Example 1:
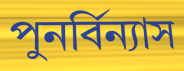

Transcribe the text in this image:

পুনর্বিন্যাস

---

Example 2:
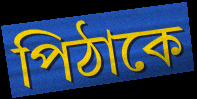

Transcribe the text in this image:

পিঠাকে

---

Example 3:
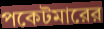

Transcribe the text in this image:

পকেটমারের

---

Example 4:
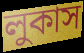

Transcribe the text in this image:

লুকাস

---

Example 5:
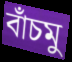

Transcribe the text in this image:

বাঁচমু